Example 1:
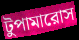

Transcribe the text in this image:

টুপামারোস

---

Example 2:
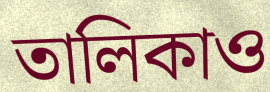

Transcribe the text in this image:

তালিকাও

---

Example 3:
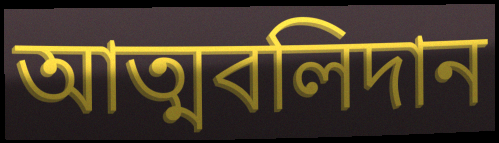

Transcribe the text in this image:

আত্মবলিদান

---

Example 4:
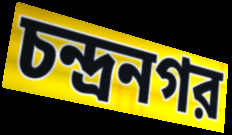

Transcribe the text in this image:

চন্দ্রনগর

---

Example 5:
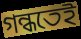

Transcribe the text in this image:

গন্ধতেই